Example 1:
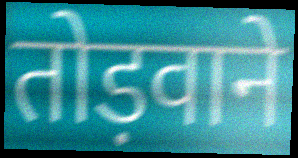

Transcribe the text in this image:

तोड़वाने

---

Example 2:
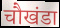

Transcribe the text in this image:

चौखंडा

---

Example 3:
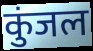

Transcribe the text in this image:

कुंजल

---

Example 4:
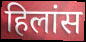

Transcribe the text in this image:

हिलांस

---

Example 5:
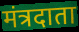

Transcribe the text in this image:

मंत्रदाता